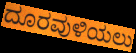
ದೂರವುಳಿಯಲು